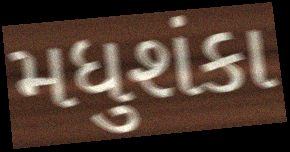
મધુશંકા